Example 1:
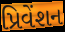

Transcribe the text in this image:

પ્રિવેંશન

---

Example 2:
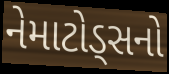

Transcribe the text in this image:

નેમાટોડ્સનો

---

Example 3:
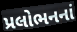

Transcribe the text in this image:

પ્રલોભનનાં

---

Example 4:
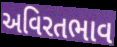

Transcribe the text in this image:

અવિરતભાવ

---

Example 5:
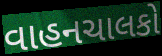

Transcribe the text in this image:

વાહનચાલકો